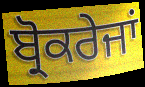
ਬ੍ਰੋਕਰੇਜਾਂ